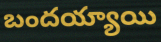
బందయ్యాయి